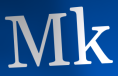
Mk